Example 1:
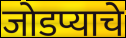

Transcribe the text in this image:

जोडप्याचे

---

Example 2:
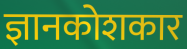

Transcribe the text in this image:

ज्ञानकोशकार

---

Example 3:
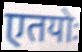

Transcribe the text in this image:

एतयोः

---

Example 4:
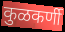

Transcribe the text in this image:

कुळकर्णी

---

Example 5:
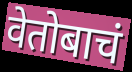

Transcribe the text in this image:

वेतोबाचं